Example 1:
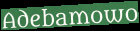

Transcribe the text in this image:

Adebamowo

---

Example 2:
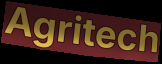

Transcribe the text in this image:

Agritech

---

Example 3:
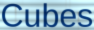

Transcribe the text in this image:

Cubes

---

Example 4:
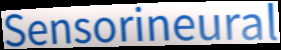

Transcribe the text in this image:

Sensorineural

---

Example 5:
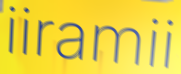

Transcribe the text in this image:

iiramii